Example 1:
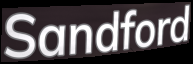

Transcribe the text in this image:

Sandford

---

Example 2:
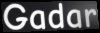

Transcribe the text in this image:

Gadar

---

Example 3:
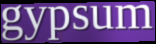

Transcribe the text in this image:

gypsum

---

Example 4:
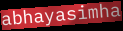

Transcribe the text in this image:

abhayasimha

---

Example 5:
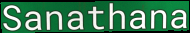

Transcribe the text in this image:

Sanathana